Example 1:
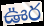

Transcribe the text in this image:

ఊర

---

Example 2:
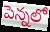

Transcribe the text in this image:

పెన్నలో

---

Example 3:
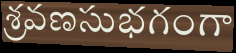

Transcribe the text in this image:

శ్రవణసుభగంగా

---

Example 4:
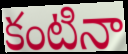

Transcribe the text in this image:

కంటినా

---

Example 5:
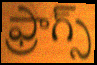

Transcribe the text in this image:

ఫ్రాగ్స్